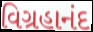
વિગ્રહાનંદ